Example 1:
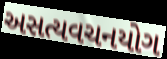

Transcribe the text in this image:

અસત્યવચનયોગ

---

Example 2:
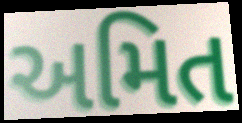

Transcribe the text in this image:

અમિત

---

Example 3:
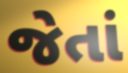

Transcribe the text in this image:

જેતાં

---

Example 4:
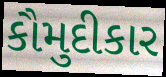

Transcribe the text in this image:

કૌમુદીકાર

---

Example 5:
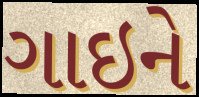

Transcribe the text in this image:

ગાઇને